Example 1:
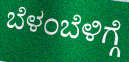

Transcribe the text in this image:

ಬೆಳಂಬೆಳಿಗ್ಗೆ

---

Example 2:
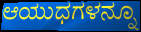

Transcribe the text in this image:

ಆಯುಧಗಳನ್ನೂ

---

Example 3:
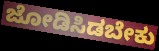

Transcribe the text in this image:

ಜೋಡಿಸಿಡಬೇಕು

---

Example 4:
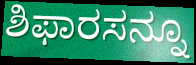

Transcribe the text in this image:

ಶಿಫಾರಸನ್ನೂ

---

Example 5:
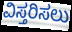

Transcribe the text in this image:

ವಿಸ್ತರಿಸಲು